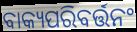
ବାକ୍ୟପରିବର୍ତ୍ତନଂ